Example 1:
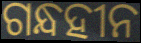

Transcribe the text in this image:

ଗନ୍ଧହୀନ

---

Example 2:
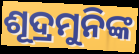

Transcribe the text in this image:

ଶୂଦ୍ରମୁନିଙ୍କ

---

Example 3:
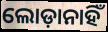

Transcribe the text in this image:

ଲୋଡ଼ାନାହିଁ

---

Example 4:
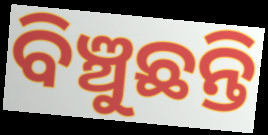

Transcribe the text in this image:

ବିଞ୍ଚୁଛନ୍ତି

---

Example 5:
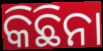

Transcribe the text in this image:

କିଛିନା